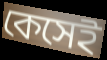
কেসেই